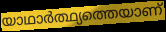
യാഥാർത്ഥ്യത്തെയാണ്